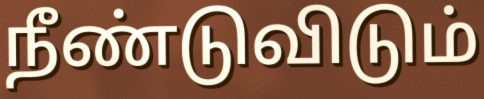
நீண்டுவிடும்